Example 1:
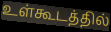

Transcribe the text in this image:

உள்கூடத்தில்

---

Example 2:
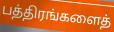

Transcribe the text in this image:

பத்திரங்களைத்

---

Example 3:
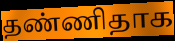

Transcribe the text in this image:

தண்ணிதாக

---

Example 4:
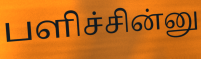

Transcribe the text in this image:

பளிச்சின்னு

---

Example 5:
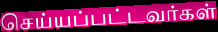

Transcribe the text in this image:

செய்யப்பட்டவர்கள்